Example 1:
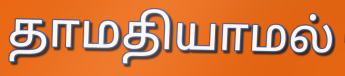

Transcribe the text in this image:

தாமதியாமல்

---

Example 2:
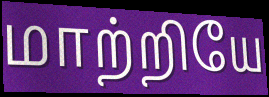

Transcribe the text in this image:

மாற்றியே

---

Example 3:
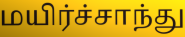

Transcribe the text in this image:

மயிர்ச்சாந்து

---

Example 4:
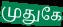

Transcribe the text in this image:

முதுகே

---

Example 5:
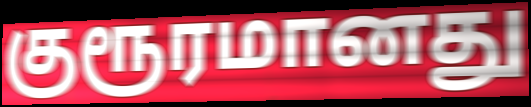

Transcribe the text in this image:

குரூரமானது